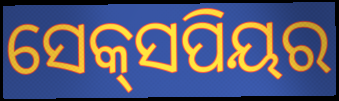
ସେକ୍‍ସପିୟର